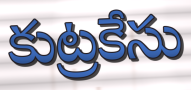
కుట్రకేసు